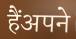
हैंअपने